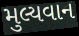
મુલ્યવાન